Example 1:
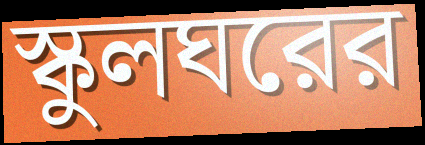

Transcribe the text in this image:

স্কুলঘরের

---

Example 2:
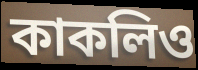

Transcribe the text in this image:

কাকলিও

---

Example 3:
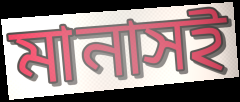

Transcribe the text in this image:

মানাসই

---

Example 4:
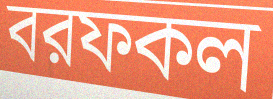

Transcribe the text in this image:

বরফকল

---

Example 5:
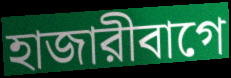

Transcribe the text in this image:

হাজারীবাগে